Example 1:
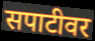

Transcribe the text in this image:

सपाटीवर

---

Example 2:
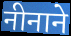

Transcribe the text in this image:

नीनाने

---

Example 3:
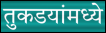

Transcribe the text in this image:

तुकडयांमध्ये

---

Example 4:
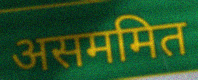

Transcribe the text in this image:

असममित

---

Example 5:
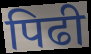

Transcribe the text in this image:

पिढी